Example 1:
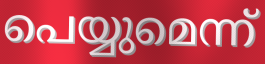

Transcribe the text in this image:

പെയ്യുമെന്ന്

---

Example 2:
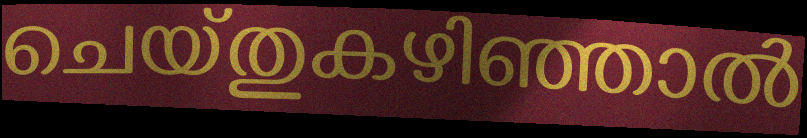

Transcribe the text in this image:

ചെയ്തുകഴിഞ്ഞാൽ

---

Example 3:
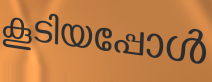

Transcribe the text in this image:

കൂടിയപ്പോൾ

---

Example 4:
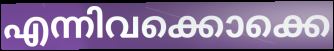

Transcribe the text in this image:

എന്നിവക്കൊക്കെ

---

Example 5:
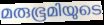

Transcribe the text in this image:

മരുഭൂമിയുടെ